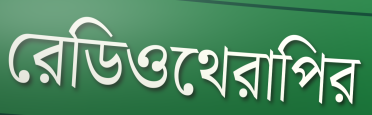
রেডিওথেরাপির